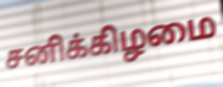
சனிக்கிழமை